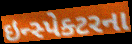
ઇન્સ્પેક્ટરના